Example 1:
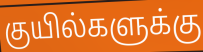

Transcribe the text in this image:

குயில்களுக்கு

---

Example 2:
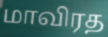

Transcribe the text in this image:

மாவிரத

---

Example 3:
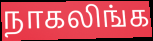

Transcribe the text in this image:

நாகலிங்க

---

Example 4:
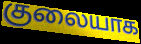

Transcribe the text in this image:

குலையாக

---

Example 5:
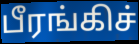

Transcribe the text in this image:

பீரங்கிச்